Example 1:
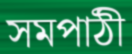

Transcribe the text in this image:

সমপাঠী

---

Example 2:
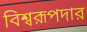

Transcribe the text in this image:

বিশ্বরূপদার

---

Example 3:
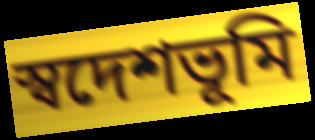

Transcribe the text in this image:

স্বদেশভূমি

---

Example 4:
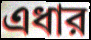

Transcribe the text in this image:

এধার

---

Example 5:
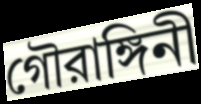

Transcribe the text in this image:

গৌরাঙ্গিনী